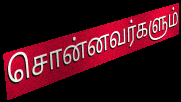
சொன்னவர்களும்